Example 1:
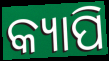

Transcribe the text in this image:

କ୍ୟାପି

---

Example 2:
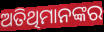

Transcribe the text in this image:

ଅତିଥିମାନଙ୍କର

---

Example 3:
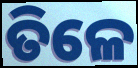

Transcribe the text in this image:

ତିଳେ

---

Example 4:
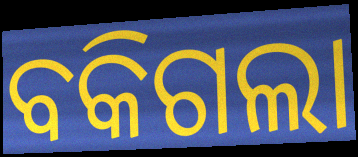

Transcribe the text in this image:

ବକିଗଲା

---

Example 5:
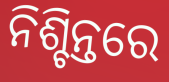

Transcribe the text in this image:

ନିଶ୍ଚିନ୍ତରେ